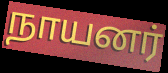
நாயனர்